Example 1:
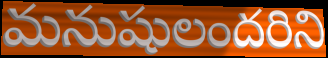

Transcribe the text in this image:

మనుషులందరిని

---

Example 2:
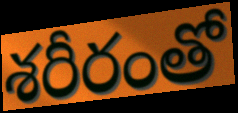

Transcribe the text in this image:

శరీరంతో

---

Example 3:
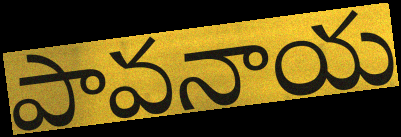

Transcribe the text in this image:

పావనాయ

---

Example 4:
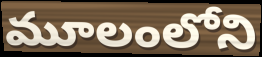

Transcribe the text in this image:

మూలంలోని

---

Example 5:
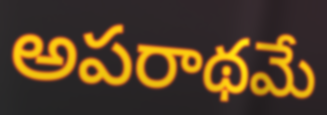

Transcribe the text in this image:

అపరాథమే